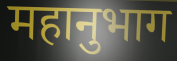
महानुभाग